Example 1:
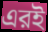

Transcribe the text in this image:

এরই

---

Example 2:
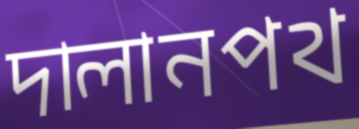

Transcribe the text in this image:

দালানপথ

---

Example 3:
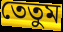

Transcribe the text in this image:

তেতুম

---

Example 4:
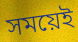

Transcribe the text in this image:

সময়েই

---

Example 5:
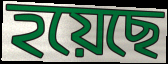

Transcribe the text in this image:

হয়েছে